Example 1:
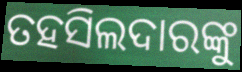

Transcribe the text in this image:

ତହସିଲଦାରଙ୍କୁ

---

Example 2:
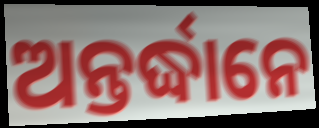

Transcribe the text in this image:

ଅନ୍ତର୍ଦ୍ଧାନେ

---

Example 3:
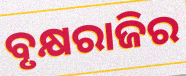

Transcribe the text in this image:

ବୃକ୍ଷରାଜିର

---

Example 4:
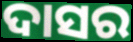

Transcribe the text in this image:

ଦାସର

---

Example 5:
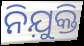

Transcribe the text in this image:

ନିଯ଼ୁକ୍ତି